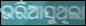
ଭରିଆସୁଥିଲା